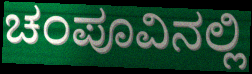
ಚಂಪೂವಿನಲ್ಲಿ